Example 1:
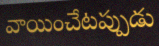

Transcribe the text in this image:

వాయించేటప్పుడు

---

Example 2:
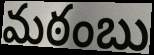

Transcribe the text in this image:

మఠంబు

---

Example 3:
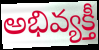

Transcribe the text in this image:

అభివ్యక్తీ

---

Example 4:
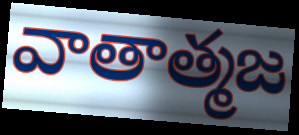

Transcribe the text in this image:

వాతాత్మజ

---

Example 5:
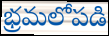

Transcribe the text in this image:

భ్రమలోపడి